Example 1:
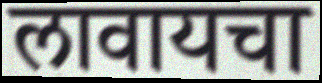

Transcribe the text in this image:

लावायचा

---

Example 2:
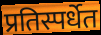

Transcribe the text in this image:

प्रतिस्पर्धेत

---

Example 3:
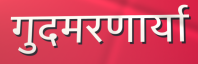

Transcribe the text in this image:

गुदमरणार्या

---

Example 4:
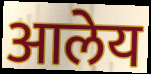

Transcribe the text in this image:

आलेय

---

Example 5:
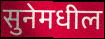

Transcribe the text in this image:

सुनेमधील